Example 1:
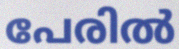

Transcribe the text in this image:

പേരിൽ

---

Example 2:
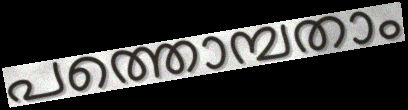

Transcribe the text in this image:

പത്തൊമ്പതാം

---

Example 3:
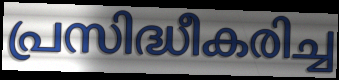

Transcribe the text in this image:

പ്രസിദ്ധീകരിച്ച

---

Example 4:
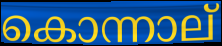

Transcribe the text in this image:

കൊന്നാല്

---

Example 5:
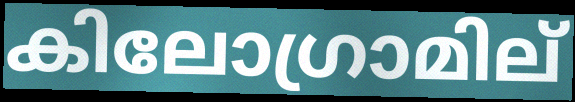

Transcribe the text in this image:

കിലോഗ്രാമില്